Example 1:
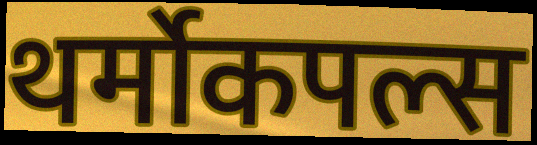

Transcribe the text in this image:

थर्मोकपल्स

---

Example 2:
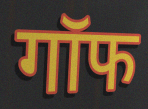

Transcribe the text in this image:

गॉफ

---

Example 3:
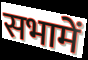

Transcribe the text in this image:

सभामें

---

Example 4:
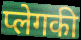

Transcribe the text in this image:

प्लेगकी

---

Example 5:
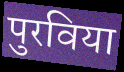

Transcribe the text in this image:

पुरविया